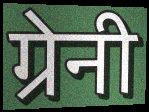
ग्रेनी